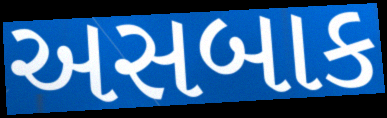
અસબાક